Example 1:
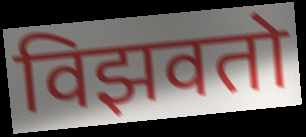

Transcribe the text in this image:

विझवतो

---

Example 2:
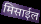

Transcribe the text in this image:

मिसाईल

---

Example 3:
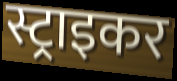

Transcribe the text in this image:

स्ट्राइकर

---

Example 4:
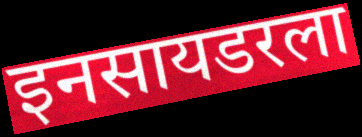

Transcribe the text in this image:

इनसायडरला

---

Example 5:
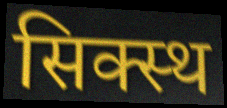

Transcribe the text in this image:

सिक्स्थ